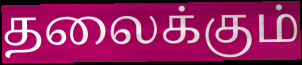
தலைக்கும்